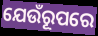
ଯେଉଁରୂପରେ